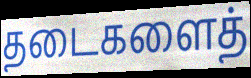
தடைகளைத்